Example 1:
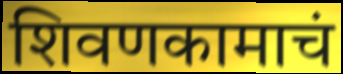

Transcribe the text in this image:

शिवणकामाचं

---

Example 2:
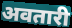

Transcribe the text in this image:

अवतारी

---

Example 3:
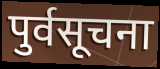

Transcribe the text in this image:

पुर्वसूचना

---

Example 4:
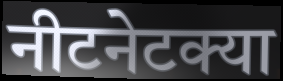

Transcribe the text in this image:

नीटनेटक्‍या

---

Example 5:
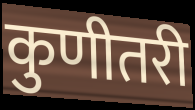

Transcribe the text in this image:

कुणीतरी